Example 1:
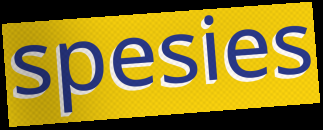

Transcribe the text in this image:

spesies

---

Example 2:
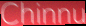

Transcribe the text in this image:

Chinnu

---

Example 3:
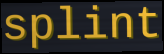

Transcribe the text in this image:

splint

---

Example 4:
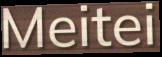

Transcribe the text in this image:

Meitei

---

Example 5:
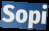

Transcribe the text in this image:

Sopi